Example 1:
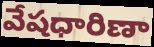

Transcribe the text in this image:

వేషధారిణా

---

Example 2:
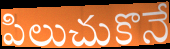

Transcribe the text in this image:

పిలుచుకొనే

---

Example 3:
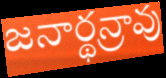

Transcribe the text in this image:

జనార్థన్రావు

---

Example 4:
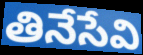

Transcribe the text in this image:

తినేసేవి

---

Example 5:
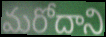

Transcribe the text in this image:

మరోదాని